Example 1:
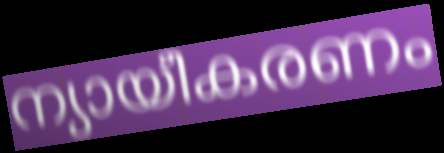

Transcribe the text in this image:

ന്യായീകരണം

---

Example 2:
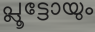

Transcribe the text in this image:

പ്ലൂട്ടോയും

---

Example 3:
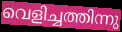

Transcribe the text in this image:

വെളിച്ചത്തിന്നു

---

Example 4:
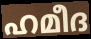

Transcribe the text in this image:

ഹമീദ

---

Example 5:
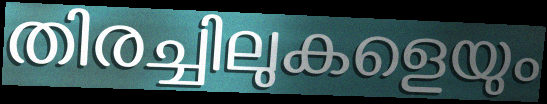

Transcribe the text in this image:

തിരച്ചിലുകളെയും